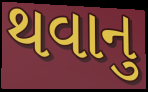
થવાનુ